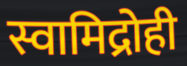
स्वामिद्रोही